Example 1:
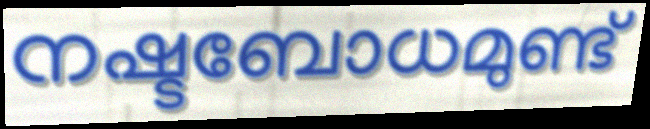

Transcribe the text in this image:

നഷ്ടബോധമുണ്ട്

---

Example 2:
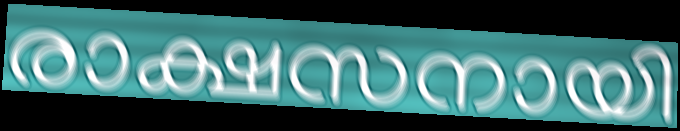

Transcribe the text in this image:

രാക്ഷസനായി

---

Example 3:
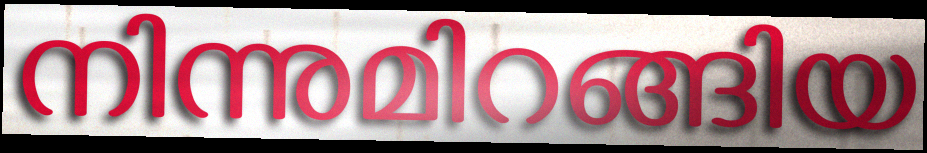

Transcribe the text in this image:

നിന്നുമിറങ്ങിയ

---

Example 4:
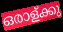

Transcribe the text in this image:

ഒരാള്ക്കു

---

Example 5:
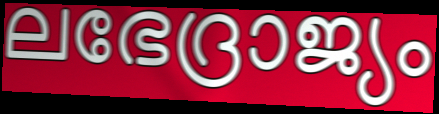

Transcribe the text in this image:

ലഭേദ്രാജ്യം